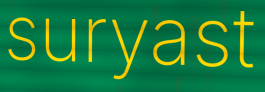
suryast